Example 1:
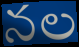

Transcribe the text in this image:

నల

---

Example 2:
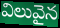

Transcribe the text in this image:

విలువైన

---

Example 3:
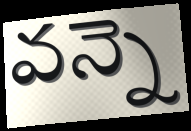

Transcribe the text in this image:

వన్నె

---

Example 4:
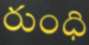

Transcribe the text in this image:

రుంధి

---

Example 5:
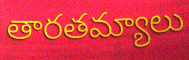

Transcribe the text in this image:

తారతమ్యాలు